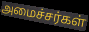
அமைச்சர்கள்